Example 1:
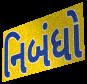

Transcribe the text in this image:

નિબંધો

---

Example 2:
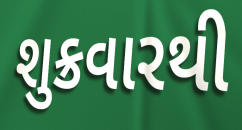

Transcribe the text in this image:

શુક્રવારથી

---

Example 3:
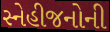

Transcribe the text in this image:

સ્નેહીજનોની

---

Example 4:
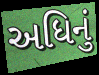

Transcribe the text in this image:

અધિનું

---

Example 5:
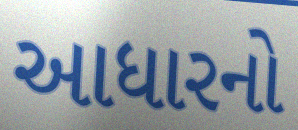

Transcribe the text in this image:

આધારનો